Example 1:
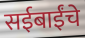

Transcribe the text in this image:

सईबाईंचे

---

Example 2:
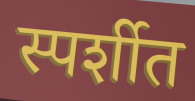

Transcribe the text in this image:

स्पर्शीत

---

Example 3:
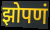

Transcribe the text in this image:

झोपणं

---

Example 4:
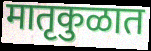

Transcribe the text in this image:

मातृकुळात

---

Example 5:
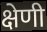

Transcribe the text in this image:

क्षेणी